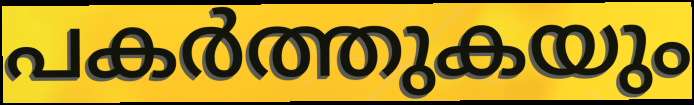
പകർത്തുകയും